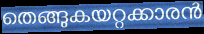
തെങ്ങുകയറ്റക്കാരൻ